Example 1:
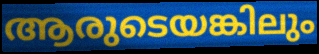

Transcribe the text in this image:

ആരുടെയങ്കിലും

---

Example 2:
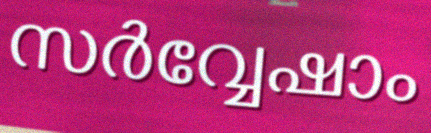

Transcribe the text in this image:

സർവ്വേഷാം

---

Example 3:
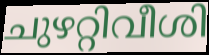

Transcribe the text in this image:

ചുഴറ്റിവീശി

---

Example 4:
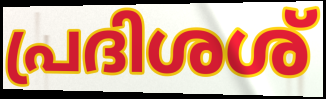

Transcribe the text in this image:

പ്രദിശശ്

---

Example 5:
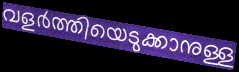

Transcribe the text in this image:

വളർത്തിയെടുക്കാനുള്ള